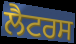
ਲੈਟਰਸ